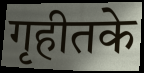
गृहीतके